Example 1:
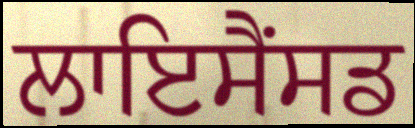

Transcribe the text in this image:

ਲਾਇਸੈਂਸਡ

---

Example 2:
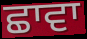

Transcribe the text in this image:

ਛਾਵਾ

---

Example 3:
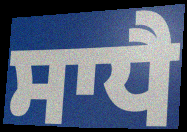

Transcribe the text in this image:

ਸਾਧੈ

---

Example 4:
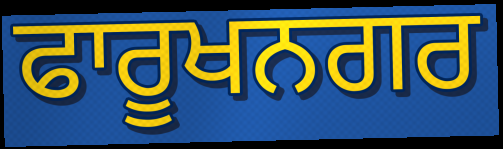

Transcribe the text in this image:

ਫਾਰੂਖਨਗਰ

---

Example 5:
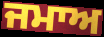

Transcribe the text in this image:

ਜਮਾਅ